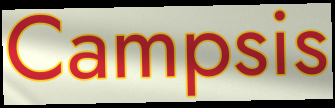
Campsis